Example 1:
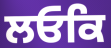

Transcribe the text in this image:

ਲਓਕਿ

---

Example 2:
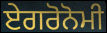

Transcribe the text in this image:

ਏਗਰੋਨੋਮੀ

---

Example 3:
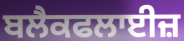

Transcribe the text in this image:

ਬਲੈਕਫਲਾਈਜ਼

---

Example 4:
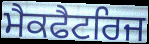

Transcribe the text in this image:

ਮੈਕਫੈਟਰਿਜ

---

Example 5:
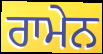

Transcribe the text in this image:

ਰਾਮੇਨ